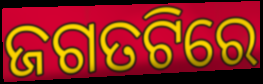
ଜଗତଟିରେ